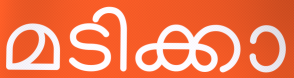
മടിക്കാ